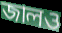
জালও